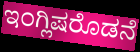
ಇಂಗ್ಲಿಷರೊಡನೆ